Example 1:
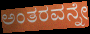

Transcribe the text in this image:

ಅಂತರವನ್ನೇ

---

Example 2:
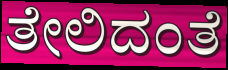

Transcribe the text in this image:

ತೇಲಿದಂತೆ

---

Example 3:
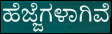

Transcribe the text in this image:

ಹೆಜ್ಜೆಗಳಾಗಿವೆ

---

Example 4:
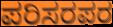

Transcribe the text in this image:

ಪರಿಸರಪರ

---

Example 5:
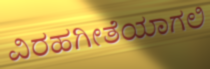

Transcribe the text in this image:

ವಿರಹಗೀತೆಯಾಗಲಿ